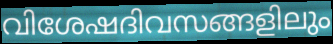
വിശേഷദിവസങ്ങളിലും